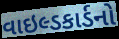
વાઇલ્ડકાર્ડનો